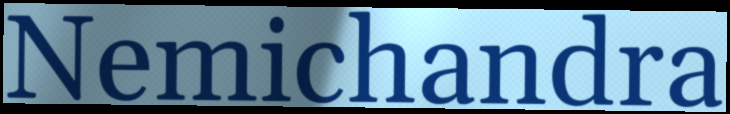
Nemichandra